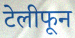
टेलीफून